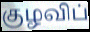
குழவிப்